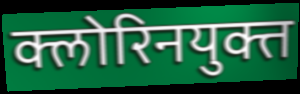
क्लोरिनयुक्त